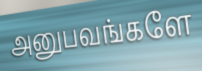
அனுபவங்களே